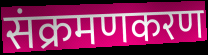
संक्रमणकरण